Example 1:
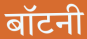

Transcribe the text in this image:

बॉटनी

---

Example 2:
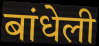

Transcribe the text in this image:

बांधेली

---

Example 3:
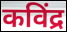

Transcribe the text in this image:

कविंद्र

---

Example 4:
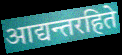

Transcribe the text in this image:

आद्यन्तरहिते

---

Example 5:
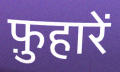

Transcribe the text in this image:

फ़ुहारें